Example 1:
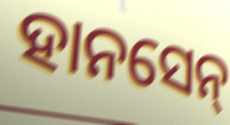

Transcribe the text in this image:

ହାନସେନ୍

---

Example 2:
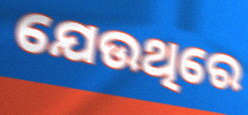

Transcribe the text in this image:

ଯେଉଥିରେ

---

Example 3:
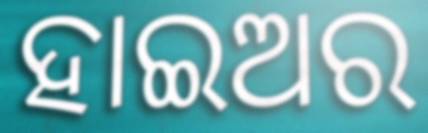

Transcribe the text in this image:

ହାଇଅର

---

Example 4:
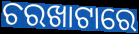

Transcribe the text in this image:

ଚରଖାଟାରେ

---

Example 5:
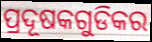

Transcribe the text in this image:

ପ୍ରଦୂଷକଗୁଡିକର